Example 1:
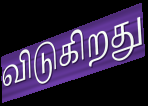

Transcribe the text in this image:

விடுகிறது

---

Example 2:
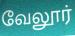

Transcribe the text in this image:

வேலூர்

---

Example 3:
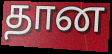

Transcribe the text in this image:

தான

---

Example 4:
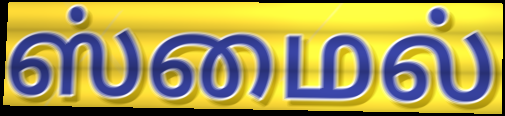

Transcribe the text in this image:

ஸ்மைல்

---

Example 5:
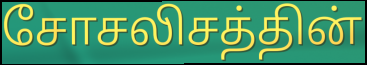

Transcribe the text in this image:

சோசலிசத்தின்